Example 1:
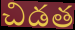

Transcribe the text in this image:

చిడత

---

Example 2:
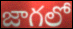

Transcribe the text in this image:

జాగలో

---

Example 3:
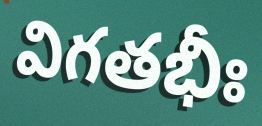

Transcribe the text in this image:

విగతభీః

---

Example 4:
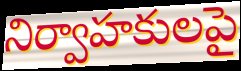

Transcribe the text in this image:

నిర్వాహకులపై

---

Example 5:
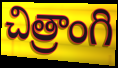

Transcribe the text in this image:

చిత్రాంగి